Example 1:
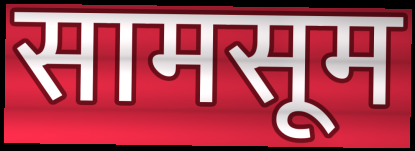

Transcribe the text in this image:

सामसूम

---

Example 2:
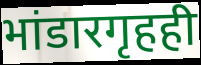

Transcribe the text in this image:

भांडारगृहही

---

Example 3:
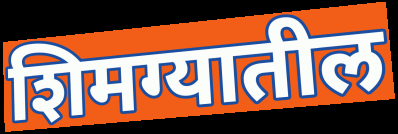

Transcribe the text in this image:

शिमग्यातील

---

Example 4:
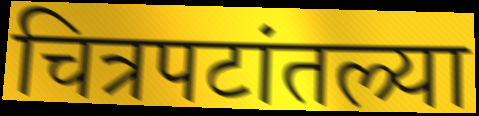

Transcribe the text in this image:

चित्रपटांतल्या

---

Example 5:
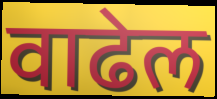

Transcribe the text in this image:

वाढेल